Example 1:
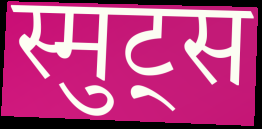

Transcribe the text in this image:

स्मुट्स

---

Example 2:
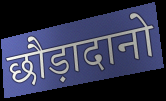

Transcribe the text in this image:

छौड़ादानो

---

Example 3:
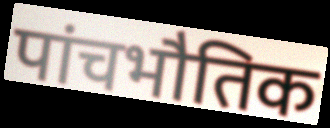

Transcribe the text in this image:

पांचभौतिक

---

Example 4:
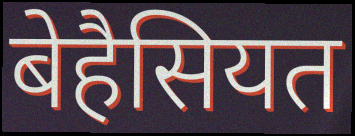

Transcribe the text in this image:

बेहैसियत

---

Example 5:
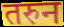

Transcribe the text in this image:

तरुन